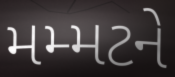
મમ્મટને